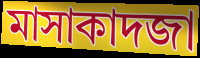
মাসাকাদজা